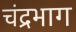
चंद्रभाग